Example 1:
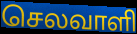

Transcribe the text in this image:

செலவாளி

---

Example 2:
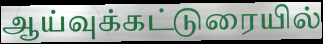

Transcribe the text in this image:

ஆய்வுக்கட்டுரையில்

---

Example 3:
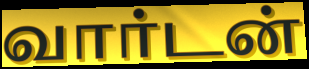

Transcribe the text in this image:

வார்டன்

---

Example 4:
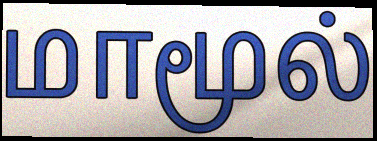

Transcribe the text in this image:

மாமூல்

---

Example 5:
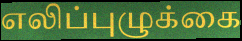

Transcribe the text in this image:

எலிப்புழுக்கை